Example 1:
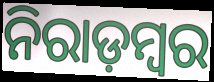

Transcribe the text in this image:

ନିରାଡ଼ମ୍ବର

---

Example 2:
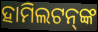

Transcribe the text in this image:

ହାମିଲଟନ୍‍ଙ୍କ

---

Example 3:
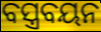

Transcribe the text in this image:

ବସ୍ତ୍ରବୟନ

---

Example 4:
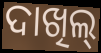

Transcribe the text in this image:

ଦାଖିଲ୍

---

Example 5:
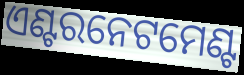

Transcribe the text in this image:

ଏଣ୍ଟରନେଟମେଣ୍ଟ